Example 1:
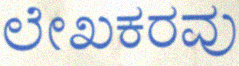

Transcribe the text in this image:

ಲೇಖಕರವು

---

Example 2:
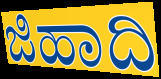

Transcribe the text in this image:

ಜಿಹಾದಿ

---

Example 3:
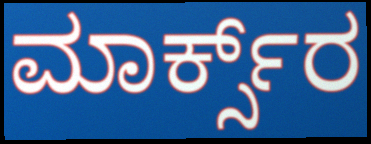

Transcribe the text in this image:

ಮಾರ್ಕ್ಸ್‌ರ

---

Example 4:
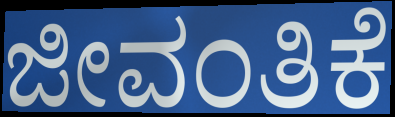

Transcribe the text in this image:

ಜೀವಂತಿಕೆ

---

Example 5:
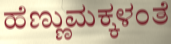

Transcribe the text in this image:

ಹೆಣ್ಣುಮಕ್ಕಳಂತೆ